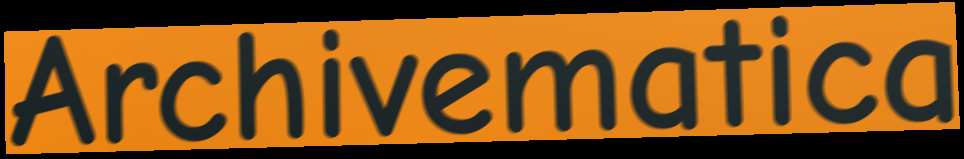
Archivematica